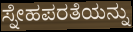
ಸ್ನೇಹಪರತೆಯನ್ನು